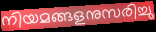
നിയമങ്ങളനുസരിച്ചു